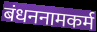
बंधननामकर्म